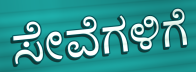
ಸೇವೆಗಳಿಗೆ